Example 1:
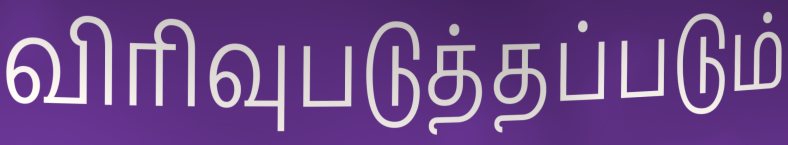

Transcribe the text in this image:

விரிவுபடுத்தப்படும்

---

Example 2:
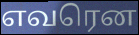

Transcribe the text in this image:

எவரென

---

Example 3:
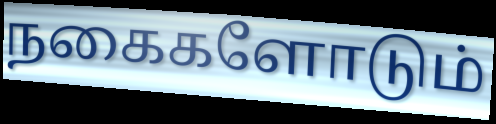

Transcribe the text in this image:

நகைகளோடும்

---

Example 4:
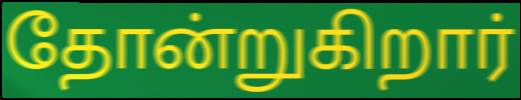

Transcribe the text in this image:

தோன்றுகிறார்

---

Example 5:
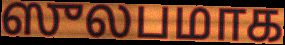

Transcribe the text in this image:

ஸுலபமாக